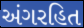
અંગરહિત